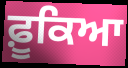
ਫ਼ੂਕਿਆ